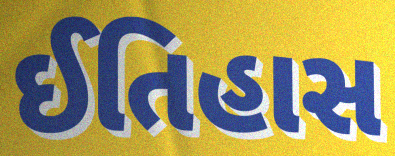
ઈતિહાસ